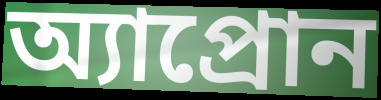
অ্যাপ্রোন